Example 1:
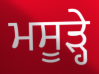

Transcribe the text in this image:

ਮਸੂੜ੍ਹੇ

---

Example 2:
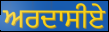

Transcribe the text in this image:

ਅਰਦਾਸੀਏ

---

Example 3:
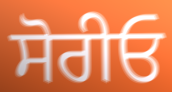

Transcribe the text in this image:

ਸੋਰੀਓ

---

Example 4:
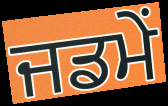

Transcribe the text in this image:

ਜਡਮੇਂ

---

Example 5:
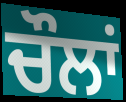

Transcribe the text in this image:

ਚੌਲਾਂ